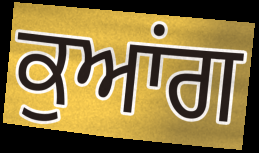
ਕੁਆਂਗ